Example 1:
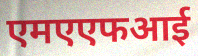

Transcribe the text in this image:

एमएएफआई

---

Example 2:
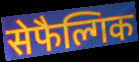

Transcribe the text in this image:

सेफैल्गिक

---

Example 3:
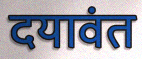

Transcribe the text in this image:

दयावंत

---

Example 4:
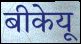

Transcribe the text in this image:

बीकेयू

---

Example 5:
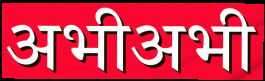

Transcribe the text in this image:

अभीअभी